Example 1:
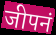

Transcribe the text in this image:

जीपनं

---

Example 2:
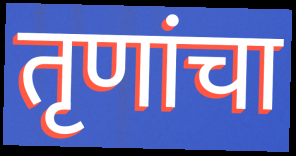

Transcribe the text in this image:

तृणांचा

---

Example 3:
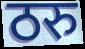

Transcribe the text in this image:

ठरु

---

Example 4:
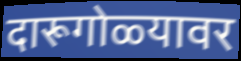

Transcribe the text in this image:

दारूगोळ्यावर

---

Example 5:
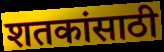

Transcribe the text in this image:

शतकांसाठी